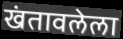
खंतावलेला